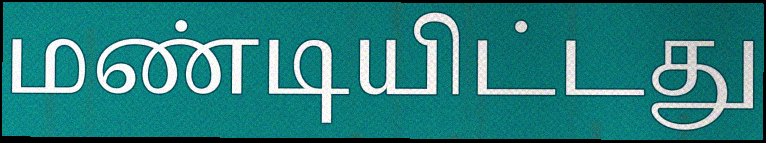
மண்டியிட்டது